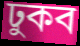
ঢুকব